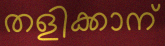
തളിക്കാന്